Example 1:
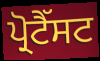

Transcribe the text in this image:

ਪ੍ਰੋਟੈੱਸਟ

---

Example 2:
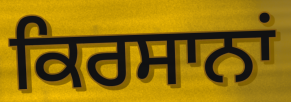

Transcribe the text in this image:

ਕਿਰਸਾਨਾਂ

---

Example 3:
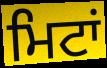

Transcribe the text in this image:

ਮਿਟਾਂ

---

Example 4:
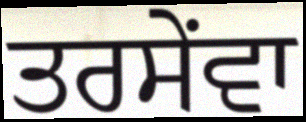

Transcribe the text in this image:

ਤਰਸੇਂਵਾ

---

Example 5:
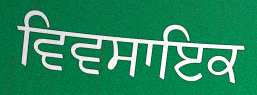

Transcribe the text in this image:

ਵਿਵਸਾਇਕ